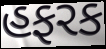
હફરક